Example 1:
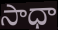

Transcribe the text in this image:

సాధా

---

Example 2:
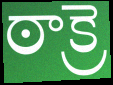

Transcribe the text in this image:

ఠాక్రె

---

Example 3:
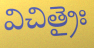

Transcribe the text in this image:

విచిత్రైః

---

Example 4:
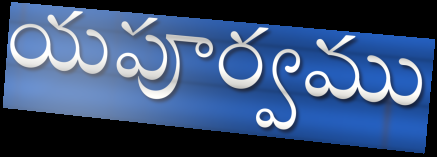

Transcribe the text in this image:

యపూర్వము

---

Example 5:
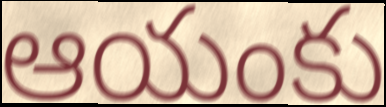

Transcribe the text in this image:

ఆయంకు